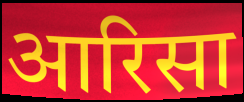
आरिसा